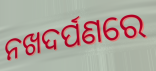
ନଖଦର୍ପଣରେ